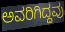
ಅವರಿಗಿದ್ದವು